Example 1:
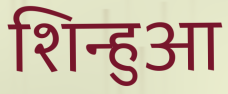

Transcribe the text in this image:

शिन्‍हुआ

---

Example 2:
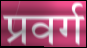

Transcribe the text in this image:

प्रवर्ग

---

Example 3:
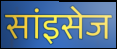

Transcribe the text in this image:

सांइसेज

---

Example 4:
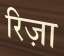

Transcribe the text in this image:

रिज़ा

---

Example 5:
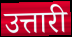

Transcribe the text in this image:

उत्तारी